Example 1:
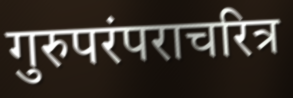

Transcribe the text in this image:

गुरुपरंपराचरित्र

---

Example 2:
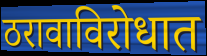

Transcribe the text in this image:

ठरावाविरोधात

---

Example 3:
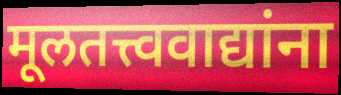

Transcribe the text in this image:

मूलतत्त्ववाद्यांना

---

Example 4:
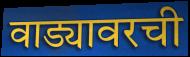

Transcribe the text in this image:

वाड्यावरची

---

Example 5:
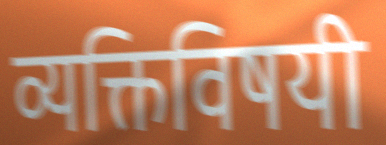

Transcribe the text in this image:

व्यक्तिविषयी